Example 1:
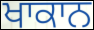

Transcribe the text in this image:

ਖਾਕਾਨ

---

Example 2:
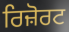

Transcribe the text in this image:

ਰਿਜ਼ੋਰਟ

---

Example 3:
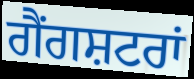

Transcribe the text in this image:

ਗੈਂਗਸ਼ਟਰਾਂ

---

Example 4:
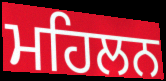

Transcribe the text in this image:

ਮਹਿਲਨ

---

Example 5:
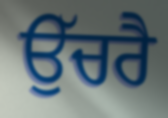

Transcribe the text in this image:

ਉੱਚਰੈ